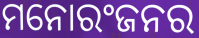
ମନୋରଂଜନର